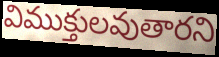
విముక్తులవుతారని